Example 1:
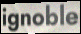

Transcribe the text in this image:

ignoble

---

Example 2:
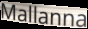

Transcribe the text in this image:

Mallanna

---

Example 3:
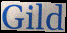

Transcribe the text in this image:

Gild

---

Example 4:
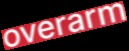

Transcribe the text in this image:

overarm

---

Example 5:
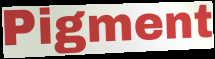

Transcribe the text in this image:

Pigment